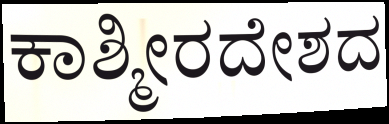
ಕಾಶ್ಮೀರದೇಶದ